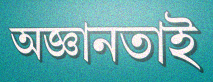
অজ্ঞানতাই